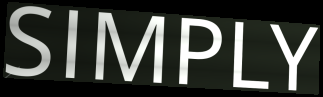
SIMPLY